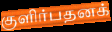
குளிர்பதனக்